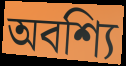
অবশ্যি